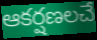
ఆకర్షణలచే